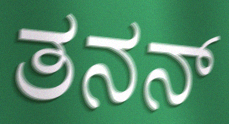
ತನನ್